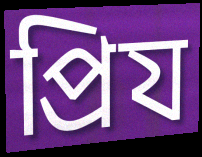
প্রিয